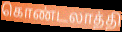
கொண்டலாத்தி